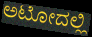
ಅಟೋದಲ್ಲಿ